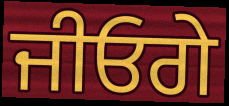
ਜੀਓਗੇ